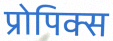
प्रोपिक्स